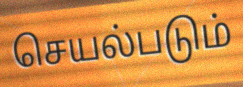
செயல்படும்